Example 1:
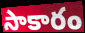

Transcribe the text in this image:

సాకారం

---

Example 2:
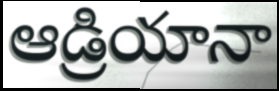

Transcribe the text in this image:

ఆడ్రియానా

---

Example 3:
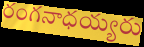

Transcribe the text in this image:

రంగనాధయ్యరు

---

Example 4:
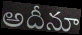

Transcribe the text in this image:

అదీనూ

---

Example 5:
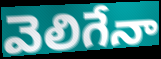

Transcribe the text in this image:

వెలిగేనా